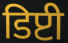
डिप्टी